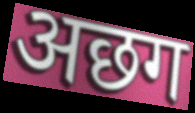
अछग